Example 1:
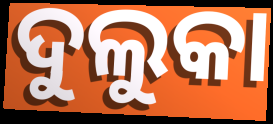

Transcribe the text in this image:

ଦୁଲୁକା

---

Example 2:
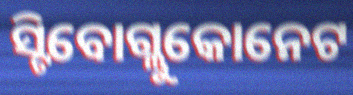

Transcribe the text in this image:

ସ୍ଟିବୋଗ୍ଲୁକୋନେଟ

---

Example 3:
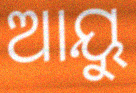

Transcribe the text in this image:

ଆୟୁ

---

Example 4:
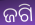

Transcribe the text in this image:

ଜଗି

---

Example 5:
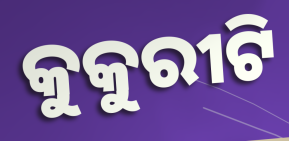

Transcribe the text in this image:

କୁକୁରୀଟି